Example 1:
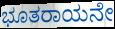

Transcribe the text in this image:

ಭೂತರಾಯನೇ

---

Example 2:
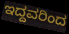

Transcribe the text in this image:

ಇದ್ದವರಿಂದ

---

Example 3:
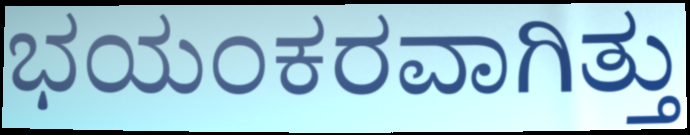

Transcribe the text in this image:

ಭಯಂಕರವಾಗಿತ್ತು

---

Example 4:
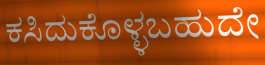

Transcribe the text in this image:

ಕಸಿದುಕೊಳ್ಳಬಹುದೇ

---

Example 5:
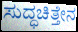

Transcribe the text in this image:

ಸುದ್ಧಚಿತ್ತೇನ